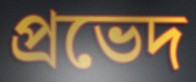
প্রভেদ